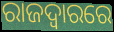
ରାଜଦ୍ୱାରରେ